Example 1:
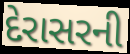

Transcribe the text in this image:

દેરાસરની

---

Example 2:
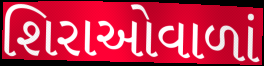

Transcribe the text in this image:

શિરાઓવાળાં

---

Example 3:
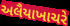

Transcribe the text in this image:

અલૈયાખાચરે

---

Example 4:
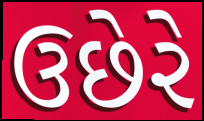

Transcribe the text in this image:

ઉછેરે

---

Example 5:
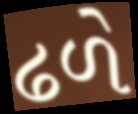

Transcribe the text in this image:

ઢળે